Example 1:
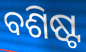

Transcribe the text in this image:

ବଶିଷ୍ଟ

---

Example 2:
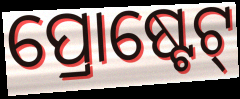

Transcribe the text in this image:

ପ୍ରୋଷ୍ଟେଟ୍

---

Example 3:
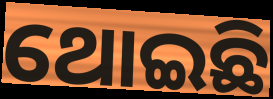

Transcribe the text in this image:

ଥୋଇଛି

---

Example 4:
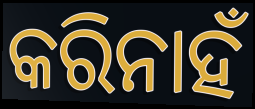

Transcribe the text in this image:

କରିନାହଁ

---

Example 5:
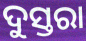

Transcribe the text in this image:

ଦୁସ୍ତରା